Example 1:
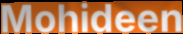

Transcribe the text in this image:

Mohideen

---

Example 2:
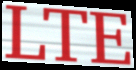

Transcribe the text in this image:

LTE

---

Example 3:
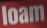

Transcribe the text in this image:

loam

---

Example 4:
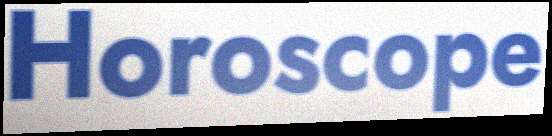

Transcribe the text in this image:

Horoscope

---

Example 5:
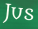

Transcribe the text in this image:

Jus